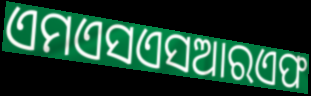
ଏମଏସଏସଆରଏଫ